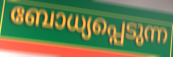
ബോധ്യപ്പെടുന്ന